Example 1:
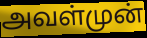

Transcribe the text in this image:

அவள்முன்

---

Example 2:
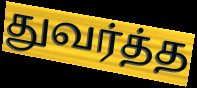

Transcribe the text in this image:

துவர்த்த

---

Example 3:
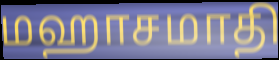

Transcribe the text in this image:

மஹாசமாதி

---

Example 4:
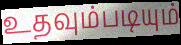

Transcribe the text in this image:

உதவும்படியும்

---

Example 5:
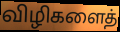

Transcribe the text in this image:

விழிகளைத்